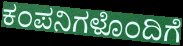
ಕಂಪನಿಗಳೊಂದಿಗೆ